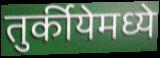
तुर्कीयेमध्ये